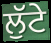
ਲੁੱਟੇ